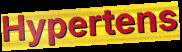
Hypertens